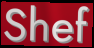
Shef